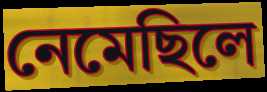
নেমেছিলে